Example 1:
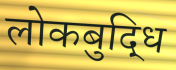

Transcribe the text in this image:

लोकबुद्धि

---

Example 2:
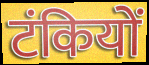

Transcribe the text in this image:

टंकियों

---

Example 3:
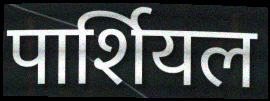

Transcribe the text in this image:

पार्शियल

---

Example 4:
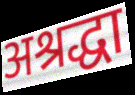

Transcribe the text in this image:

अश्रद्धा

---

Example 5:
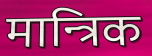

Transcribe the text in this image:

मान्त्रिक